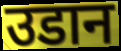
उडान